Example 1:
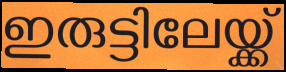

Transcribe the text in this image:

ഇരുട്ടിലേയ്ക്ക്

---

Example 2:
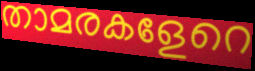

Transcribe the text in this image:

താമരകളേറെ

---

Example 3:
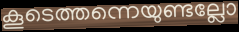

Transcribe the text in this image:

കൂടെത്തന്നെയുണ്ടല്ലോ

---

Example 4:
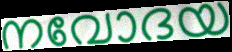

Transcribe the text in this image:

നവോദയ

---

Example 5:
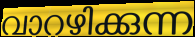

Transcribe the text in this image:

വാറഴിക്കുന്ന